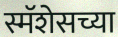
स्मॅशेसच्या